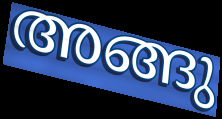
അങ്ങു